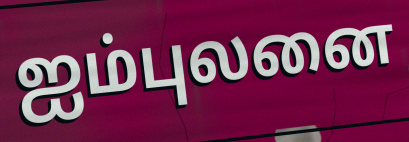
ஐம்புலனை